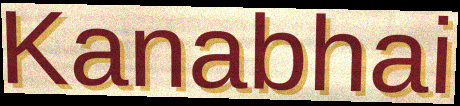
Kanabhai